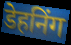
डेहनिंग